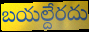
బయల్దేరదు